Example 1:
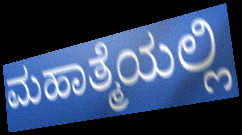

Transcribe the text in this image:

ಮಹಾತ್ಮೆಯಲ್ಲಿ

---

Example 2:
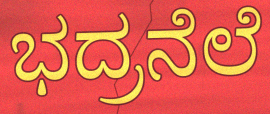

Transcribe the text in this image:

ಭದ್ರನೆಲೆ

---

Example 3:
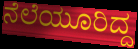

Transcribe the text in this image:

ನೆಲೆಯೂರಿದ್ದ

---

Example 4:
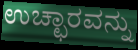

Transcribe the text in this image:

ಉಚ್ಛಾರವನ್ನು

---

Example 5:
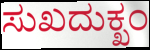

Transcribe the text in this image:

ಸುಖದುಕ್ಖಂ